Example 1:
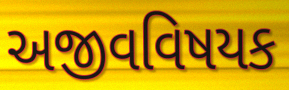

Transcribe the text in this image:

અજીવવિષયક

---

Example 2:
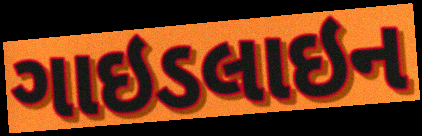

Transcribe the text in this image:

ગાઇડલાઇન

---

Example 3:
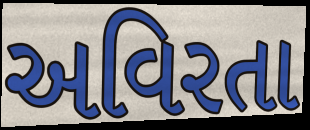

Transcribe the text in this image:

અવિરતા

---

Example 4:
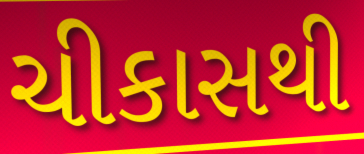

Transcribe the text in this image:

ચીકાસથી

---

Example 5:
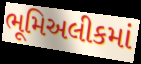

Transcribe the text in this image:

ભૂમિઅલીકમાં